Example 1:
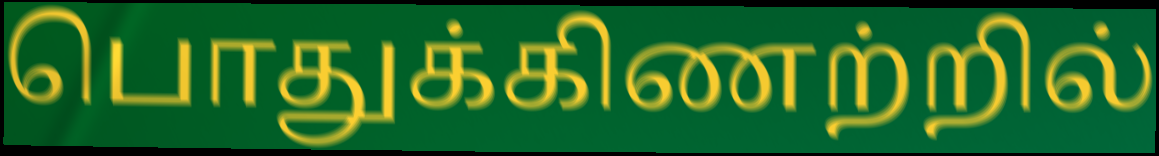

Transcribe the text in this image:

பொதுக்கிணற்றில்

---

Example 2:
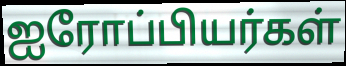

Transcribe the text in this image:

ஐரோப்பியர்கள்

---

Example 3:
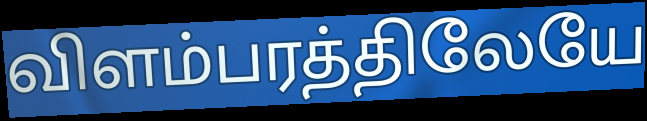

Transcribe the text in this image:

விளம்பரத்திலேயே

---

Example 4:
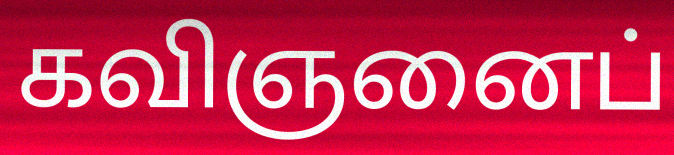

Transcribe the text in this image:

கவிஞனைப்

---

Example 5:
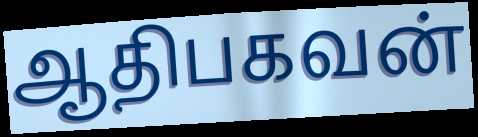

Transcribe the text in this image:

ஆதிபகவன்